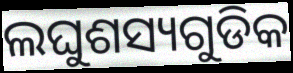
ଲଘୁଶସ୍ୟଗୁଡିକ